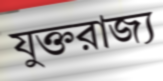
যুক্তরাজ্য